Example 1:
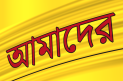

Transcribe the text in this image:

আমাদের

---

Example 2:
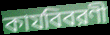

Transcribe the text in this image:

কার্যবিবরণী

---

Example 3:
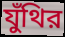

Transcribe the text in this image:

যুঁথির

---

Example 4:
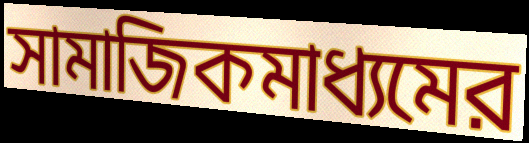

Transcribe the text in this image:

সামাজিকমাধ্যমের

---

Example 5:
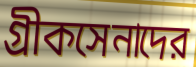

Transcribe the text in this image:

গ্রীকসেনাদের